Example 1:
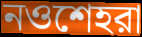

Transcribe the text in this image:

নওশেহরা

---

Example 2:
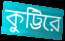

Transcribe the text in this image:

কুট্টিরে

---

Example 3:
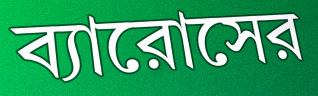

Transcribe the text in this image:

ব্যারোসের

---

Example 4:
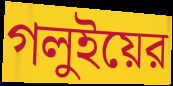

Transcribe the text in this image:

গলুইয়ের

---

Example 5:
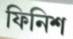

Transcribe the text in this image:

ফিনিশ